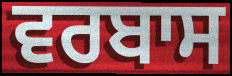
ਵਰਬਾਸ